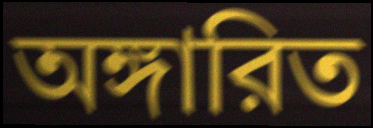
অঙ্গারিত